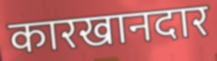
कारखानदार